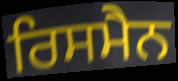
ਰਿਸਮੈਨ